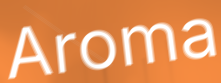
Aroma